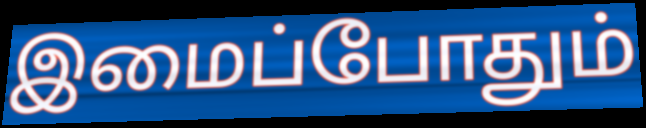
இமைப்போதும்